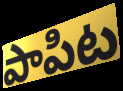
పాపిట